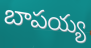
బాపయ్య